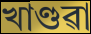
খাণ্ডৱা